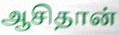
ஆசிதான்